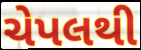
ચેપલથી